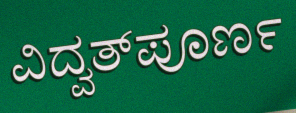
ವಿದ್ವತ್‌ಪೂರ್ಣ